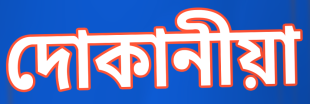
দোকানীয়া